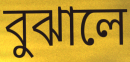
বুঝালে